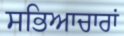
ਸਭਿਆਚਾਰਾਂ